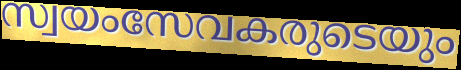
സ്വയംസേവകരുടെയും